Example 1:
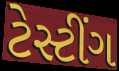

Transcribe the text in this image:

ટેસ્ટીંગ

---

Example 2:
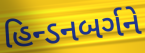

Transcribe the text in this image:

હિન્ડનબર્ગને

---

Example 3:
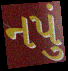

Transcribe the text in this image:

નપું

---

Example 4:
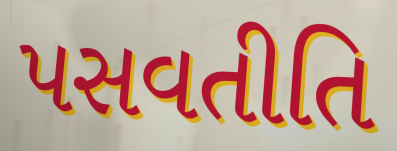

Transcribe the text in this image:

પસવતીતિ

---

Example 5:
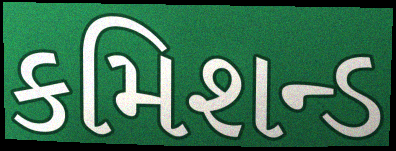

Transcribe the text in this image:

કમિશન્ડ